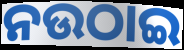
ନଉଠାଇ